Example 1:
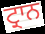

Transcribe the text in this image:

ਟ੍ਰਾਨ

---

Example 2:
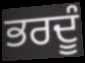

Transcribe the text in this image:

ਭਰਦੂੰ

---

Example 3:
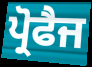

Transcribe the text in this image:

ਪ੍ਰੋਫੈਜ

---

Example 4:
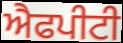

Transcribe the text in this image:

ਐਫਪੀਟੀ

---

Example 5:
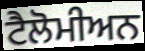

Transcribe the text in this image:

ਟੈਲੋਮੀਅਨ